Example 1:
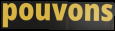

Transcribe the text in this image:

pouvons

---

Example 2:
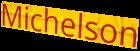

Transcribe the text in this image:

Michelson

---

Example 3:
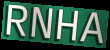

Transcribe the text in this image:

RNHA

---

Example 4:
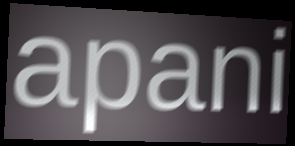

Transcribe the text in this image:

apani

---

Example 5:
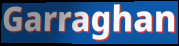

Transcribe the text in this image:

Garraghan